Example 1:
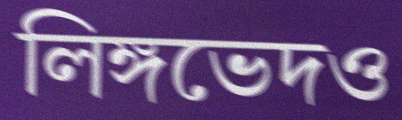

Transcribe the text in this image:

লিঙ্গভেদও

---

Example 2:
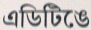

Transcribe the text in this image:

এডিটিঙে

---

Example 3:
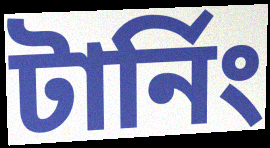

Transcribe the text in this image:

টার্নিং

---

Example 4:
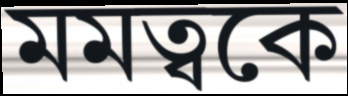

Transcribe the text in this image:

মমত্বকে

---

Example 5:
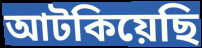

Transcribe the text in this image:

আটকিয়েছি